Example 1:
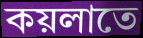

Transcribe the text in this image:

কয়লাতে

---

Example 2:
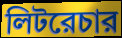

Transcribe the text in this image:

লিটরেচার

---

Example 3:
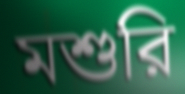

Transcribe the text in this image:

মশুরি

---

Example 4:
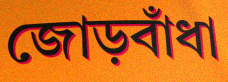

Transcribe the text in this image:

জোড়বাঁধা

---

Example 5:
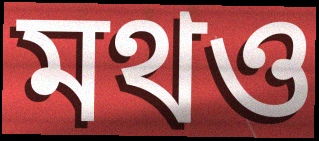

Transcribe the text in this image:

মথও